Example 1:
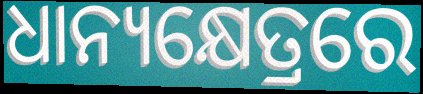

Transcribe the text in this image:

ଧାନ୍ୟକ୍ଷେତ୍ରରେ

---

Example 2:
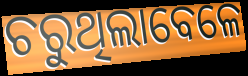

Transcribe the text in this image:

ଚରୁଥିଲାବେଳେ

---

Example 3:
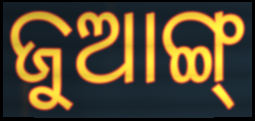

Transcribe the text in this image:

ଜୁଆଙ୍ଗ୍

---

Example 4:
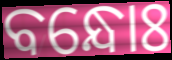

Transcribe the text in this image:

ବନ୍ଧୋଃ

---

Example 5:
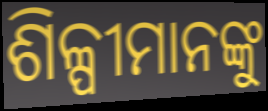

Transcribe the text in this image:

ଶିଳ୍ପୀମାନଙ୍କୁ